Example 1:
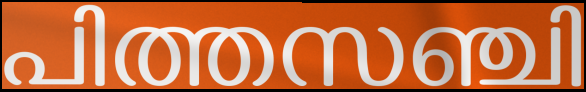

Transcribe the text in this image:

പിത്തസഞ്ചി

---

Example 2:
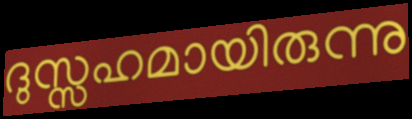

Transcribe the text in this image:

ദുസ്സഹമായിരുന്നു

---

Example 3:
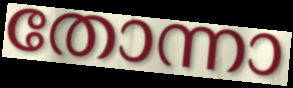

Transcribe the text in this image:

തോന്നാ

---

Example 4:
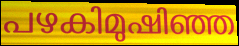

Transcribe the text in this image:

പഴകിമുഷിഞ്ഞ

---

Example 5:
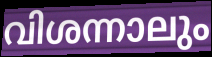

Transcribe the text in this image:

വിശന്നാലും